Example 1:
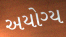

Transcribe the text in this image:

અયોગ્ય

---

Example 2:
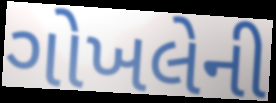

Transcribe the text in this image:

ગોખલેની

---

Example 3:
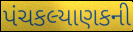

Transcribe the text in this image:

પંચકલ્યાણકની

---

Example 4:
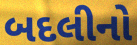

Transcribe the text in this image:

બદલીનો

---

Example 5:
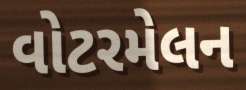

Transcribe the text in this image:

વોટરમેલન